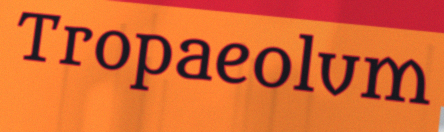
Tropaeolum